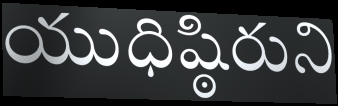
యుధిష్ఠిరుని